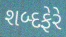
શબ્દફેરે